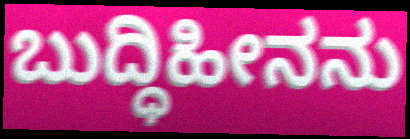
ಬುದ್ಧಿಹೀನನು